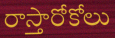
రాస్తారోకోలు